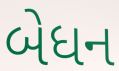
બેધન